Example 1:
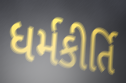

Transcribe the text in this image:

ધર્મકીર્તિ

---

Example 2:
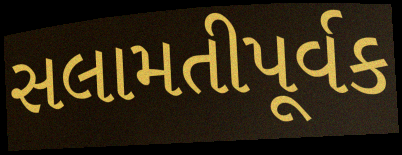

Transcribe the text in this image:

સલામતીપૂર્વક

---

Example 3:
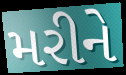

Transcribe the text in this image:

મરીને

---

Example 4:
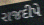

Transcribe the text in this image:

રાજદીપે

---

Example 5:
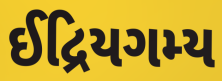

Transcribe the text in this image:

ઈદ્રિયગમ્ય